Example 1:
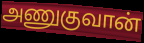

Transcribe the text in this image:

அணுகுவான்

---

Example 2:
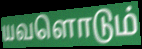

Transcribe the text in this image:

யவளொடும்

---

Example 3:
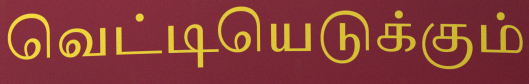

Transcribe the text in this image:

வெட்டியெடுக்கும்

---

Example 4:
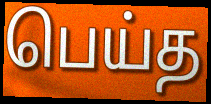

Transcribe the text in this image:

பெய்த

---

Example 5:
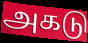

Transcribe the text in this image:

அகடு